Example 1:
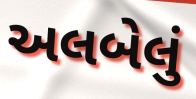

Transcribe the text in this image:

અલબેલું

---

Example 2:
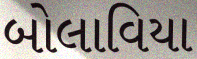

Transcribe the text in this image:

બોલાવિયા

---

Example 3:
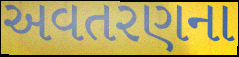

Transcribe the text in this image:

અવતરણના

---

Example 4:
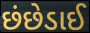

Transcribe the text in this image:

છંછેડાઈ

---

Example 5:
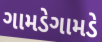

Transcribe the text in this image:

ગામડેગામડે